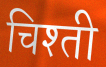
चिश्ती